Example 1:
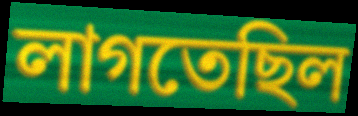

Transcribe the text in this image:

লাগতেছিল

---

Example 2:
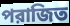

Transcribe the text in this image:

পরাজিত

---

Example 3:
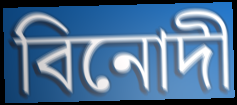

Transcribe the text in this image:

বিনোদী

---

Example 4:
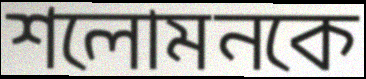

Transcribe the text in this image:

শলোমনকে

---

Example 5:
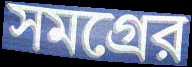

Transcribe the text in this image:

সমগ্রের